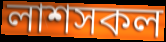
লাশসকল